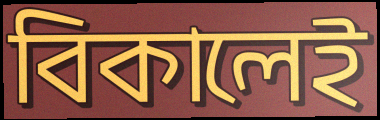
বিকালেই